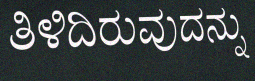
ತಿಳಿದಿರುವುದನ್ನು